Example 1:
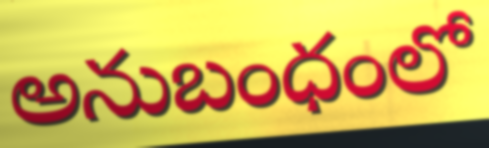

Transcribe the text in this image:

అనుబంధంలో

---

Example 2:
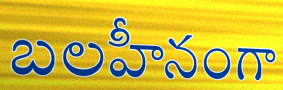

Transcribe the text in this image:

బలహీనంగా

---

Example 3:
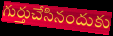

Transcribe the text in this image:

గుర్తుచేసినందుకు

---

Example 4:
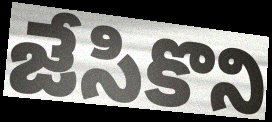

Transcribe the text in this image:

జేసికొని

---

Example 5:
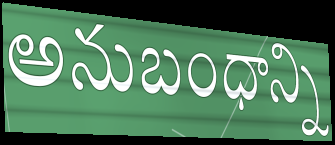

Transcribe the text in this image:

అనుబంధాన్ని